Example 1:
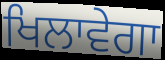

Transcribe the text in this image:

ਖਿਲਾਵੇਗਾ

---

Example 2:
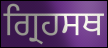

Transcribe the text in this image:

ਗ੍ਰਿਹਸਥ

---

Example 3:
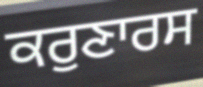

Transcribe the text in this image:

ਕਰੁਣਾਰਸ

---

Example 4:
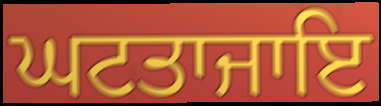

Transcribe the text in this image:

ਘਟਤਾਜਾਇ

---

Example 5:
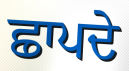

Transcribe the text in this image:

ਛਾਪਦੇ